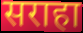
सराहा